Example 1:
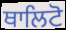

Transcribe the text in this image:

ਥਾਲਿਟੋ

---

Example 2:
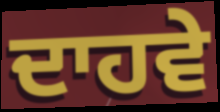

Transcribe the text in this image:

ਦਾਹਵੇ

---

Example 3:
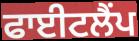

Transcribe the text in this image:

ਫਾਈਟਲੈਂਪ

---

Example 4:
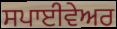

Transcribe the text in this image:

ਸਪਾਈਵੇਅਰ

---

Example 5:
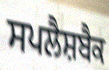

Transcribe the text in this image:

ਸਪਲੈਸ਼ਬੈਕ